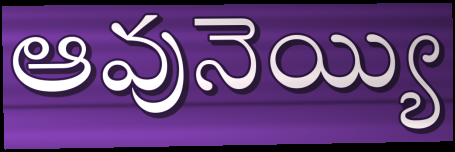
ఆవునెయ్యి